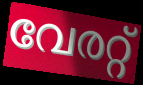
വേരറ്റ്